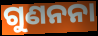
ଗୁଣନନା